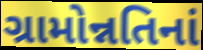
ગ્રામોન્નતિનાં